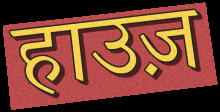
हाउज़